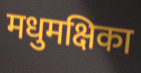
मधुमक्षिका